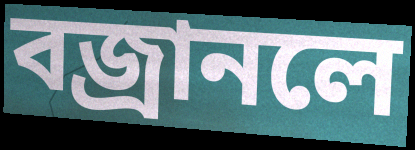
বজ্রানলে